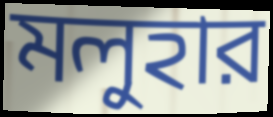
মলুহার